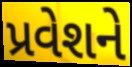
પ્રવેશને